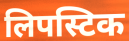
लिपस्टिक